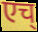
एच्